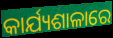
କାର୍ଯ୍ୟଶାଳାରେ